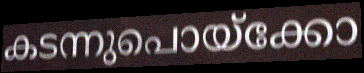
കടന്നുപൊയ്ക്കോ